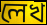
লেখ